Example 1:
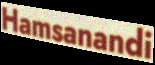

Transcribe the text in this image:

Hamsanandi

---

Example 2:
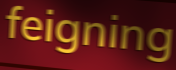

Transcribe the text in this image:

feigning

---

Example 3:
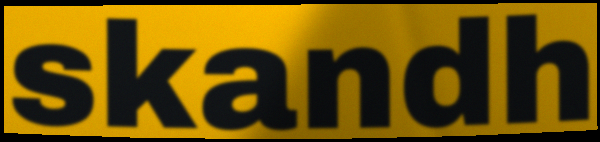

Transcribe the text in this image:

skandh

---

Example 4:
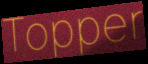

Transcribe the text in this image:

Topper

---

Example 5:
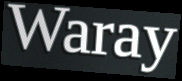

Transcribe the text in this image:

Waray